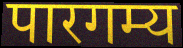
पारगम्य